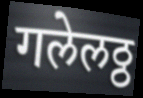
गलेलठ्ठ